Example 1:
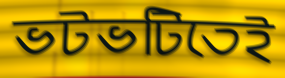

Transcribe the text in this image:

ভটভটিতেই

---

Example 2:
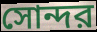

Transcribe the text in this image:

সোন্দর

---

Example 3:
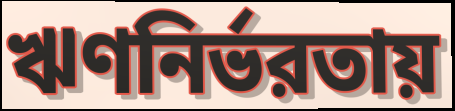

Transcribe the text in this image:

ঋণনির্ভরতায়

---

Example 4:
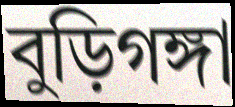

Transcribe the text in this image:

বুড়িগঙ্গা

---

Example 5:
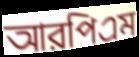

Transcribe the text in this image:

আরপিএম